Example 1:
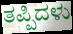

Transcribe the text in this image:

ತಪ್ಪಿದಳು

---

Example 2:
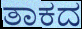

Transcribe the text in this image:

ತಾಕದ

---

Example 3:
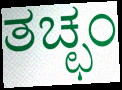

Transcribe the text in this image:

ತಚ್ಛಂ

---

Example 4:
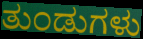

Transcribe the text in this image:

ತುಂಡುಗಳು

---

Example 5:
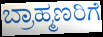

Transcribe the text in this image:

ಬ್ರಾಹ್ಮಣರಿಗೆ